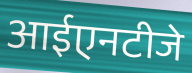
आईएनटीजे